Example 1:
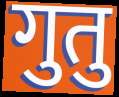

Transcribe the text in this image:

गुतु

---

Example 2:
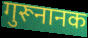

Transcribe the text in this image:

गुरूनानक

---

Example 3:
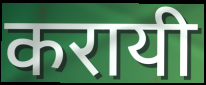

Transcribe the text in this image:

करायी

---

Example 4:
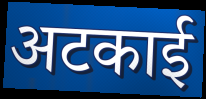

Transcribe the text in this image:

अटकाई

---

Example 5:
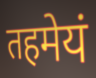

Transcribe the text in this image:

तहमेयं